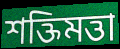
শক্তিমত্তা